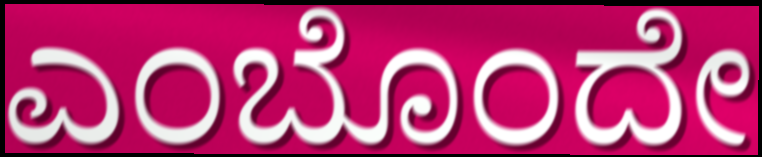
ಎಂಬೊಂದೇ